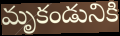
మృకండునికి